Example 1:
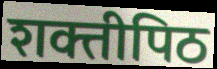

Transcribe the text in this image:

शक्तीपिठ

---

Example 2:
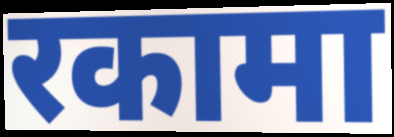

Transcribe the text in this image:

रकामा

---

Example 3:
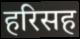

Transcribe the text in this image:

हरिसह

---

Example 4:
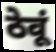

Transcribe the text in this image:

ठेवूं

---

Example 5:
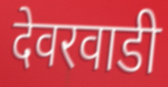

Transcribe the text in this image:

देवरवाडी